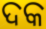
ଦକ